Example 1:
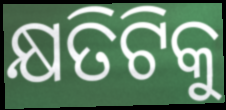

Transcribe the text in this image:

କ୍ଷତିଟିକୁ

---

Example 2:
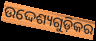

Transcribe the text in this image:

ଉଦ୍ଦେଶ୍ୟଗୁଡ଼ିକର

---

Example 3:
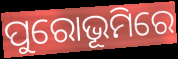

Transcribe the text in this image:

ପୁରୋଭୂମିରେ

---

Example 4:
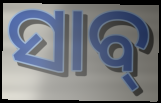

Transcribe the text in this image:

ସାବ୍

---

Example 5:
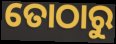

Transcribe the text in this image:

ତୋଠାରୁ